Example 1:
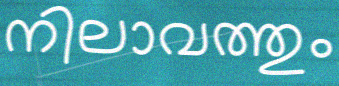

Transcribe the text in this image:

നിലാവത്തും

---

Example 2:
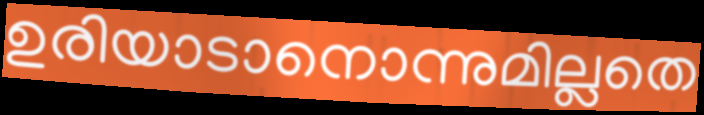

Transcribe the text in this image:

ഉരിയാടാനൊന്നുമില്ലതെ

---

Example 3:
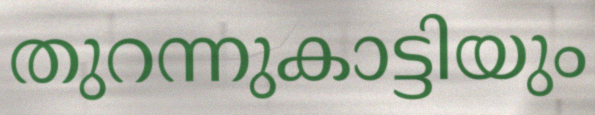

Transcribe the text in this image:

തുറന്നുകാട്ടിയും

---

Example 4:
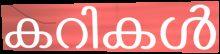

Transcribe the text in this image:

കറികൾ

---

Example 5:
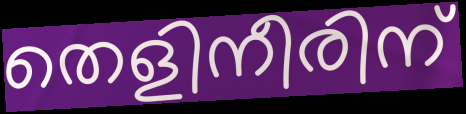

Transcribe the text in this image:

തെളിനീരിന്